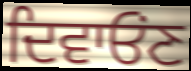
ਦਿਵਾਓੰਣ